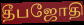
தீபஜோதி